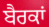
ਬੈਰਕਾਂ